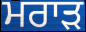
ਮਰਾੜ